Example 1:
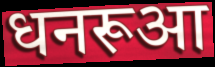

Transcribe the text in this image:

धनरूआ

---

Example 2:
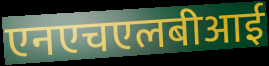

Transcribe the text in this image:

एनएचएलबीआई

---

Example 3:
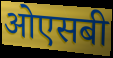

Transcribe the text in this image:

ओएसबी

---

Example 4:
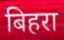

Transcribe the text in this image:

बिहरा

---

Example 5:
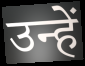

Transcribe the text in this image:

उन्‍हें